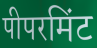
पीपरमिंट